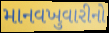
માનવખુવારીનો